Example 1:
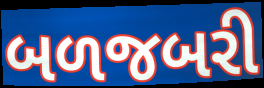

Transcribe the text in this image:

બળજબરી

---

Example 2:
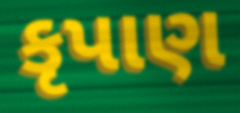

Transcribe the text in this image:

કૃપાણ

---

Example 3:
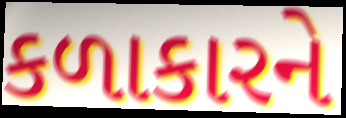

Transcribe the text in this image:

કળાકારને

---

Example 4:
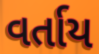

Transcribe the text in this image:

વર્તાય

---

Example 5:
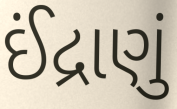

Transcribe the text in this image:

ઈંદ્રાણું